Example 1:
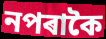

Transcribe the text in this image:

নপৰাকৈ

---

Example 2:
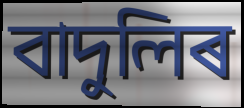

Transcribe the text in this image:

বাদুলিৰ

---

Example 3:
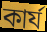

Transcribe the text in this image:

কাৰ্য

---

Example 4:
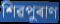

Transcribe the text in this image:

শিৱপুৰাণ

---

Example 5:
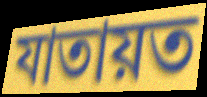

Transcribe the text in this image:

যাতায়ত